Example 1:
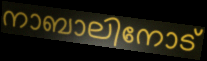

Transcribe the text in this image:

നാബാലിനോട്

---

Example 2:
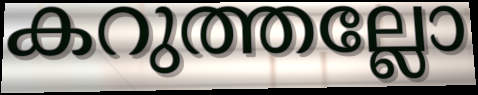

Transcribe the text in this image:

കറുത്തല്ലോ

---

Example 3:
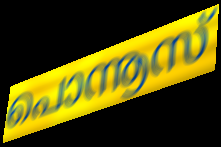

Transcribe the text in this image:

പൊന്നൂസ്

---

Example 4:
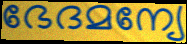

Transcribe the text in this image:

ഭേദമന്യേ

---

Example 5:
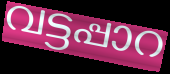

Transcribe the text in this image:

വട്ടപ്പാറ